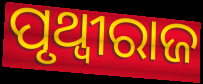
ପୃଥ୍ବୀରାଜ